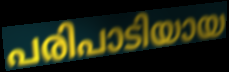
പരിപാടിയായ